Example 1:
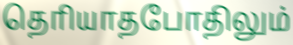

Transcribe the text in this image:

தெரியாதபோதிலும்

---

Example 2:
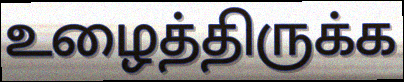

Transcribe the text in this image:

உழைத்திருக்க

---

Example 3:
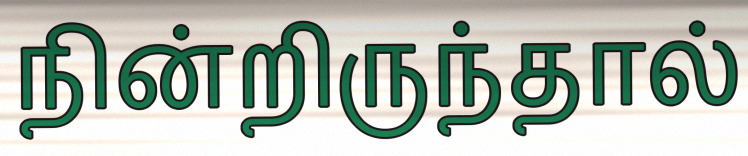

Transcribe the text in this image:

நின்றிருந்தால்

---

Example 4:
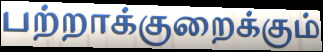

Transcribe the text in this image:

பற்றாக்குறைக்கும்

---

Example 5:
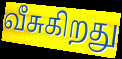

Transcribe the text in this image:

வீசுகிறது